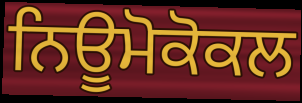
ਨਿਊਮੋਕੋਕਲ